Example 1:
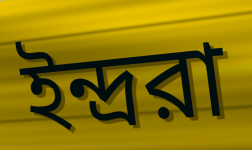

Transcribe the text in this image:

ইন্দ্ররা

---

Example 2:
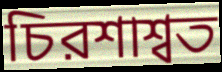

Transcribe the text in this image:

চিরশাশ্বত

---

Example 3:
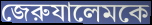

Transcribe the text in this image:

জেরুযালেমকে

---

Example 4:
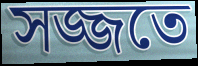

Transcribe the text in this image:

সজ্জতে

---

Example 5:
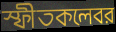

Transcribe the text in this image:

স্ফীতকলেবর